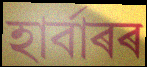
হাৰ্বাৰৰ